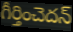
గీర్తించెదన్